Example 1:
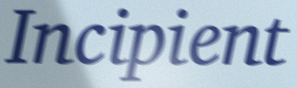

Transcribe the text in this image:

Incipient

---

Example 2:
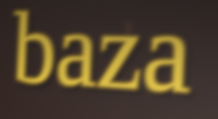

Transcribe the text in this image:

baza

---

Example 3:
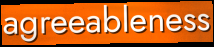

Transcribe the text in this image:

agreeableness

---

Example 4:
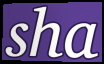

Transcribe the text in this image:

sha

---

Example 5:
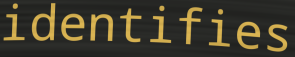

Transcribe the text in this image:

identifies